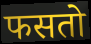
फसतो